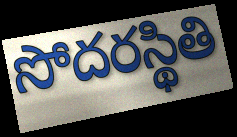
సోదరస్థితి